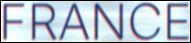
FRANCE